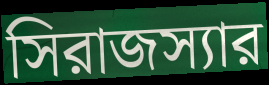
সিরাজস্যার